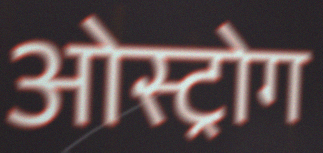
ओस्ट्रोग